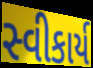
સ્વીકાર્ય